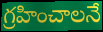
గ్రహించాలనే